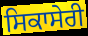
ਸਿਕਾਸੇਰੀ